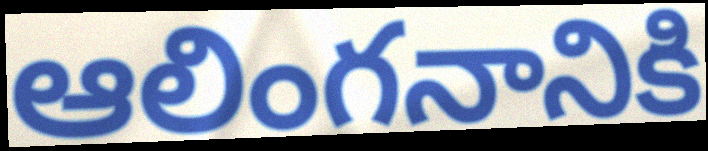
ఆలింగనానికి